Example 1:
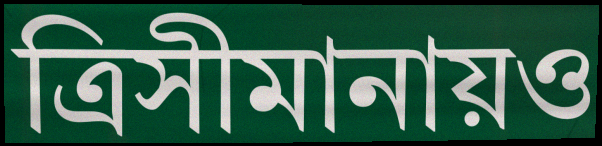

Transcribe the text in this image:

ত্রিসীমানায়ও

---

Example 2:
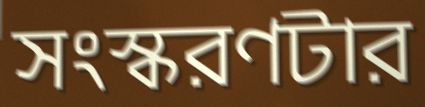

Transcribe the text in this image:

সংস্করণটার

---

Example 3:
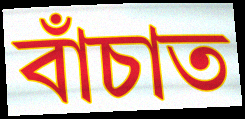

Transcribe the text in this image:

বাঁচাত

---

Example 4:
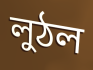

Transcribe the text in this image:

লুঠল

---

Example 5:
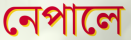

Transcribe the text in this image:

নেপালে